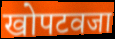
खोपटवजा